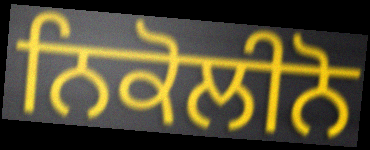
ਨਿਕੋਲੀਨੋ